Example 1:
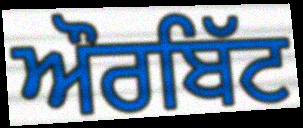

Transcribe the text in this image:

ਔਰਬਿੱਟ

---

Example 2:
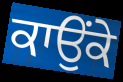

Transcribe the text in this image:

ਕਾਉਂਕੇ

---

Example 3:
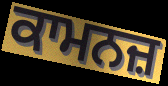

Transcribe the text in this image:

ਕਾਮਨਜ਼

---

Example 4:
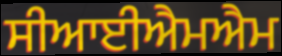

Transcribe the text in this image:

ਸੀਆਈਐਮਐਮ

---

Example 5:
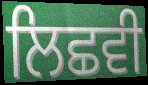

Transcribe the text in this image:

ਲਿਛਵੀ